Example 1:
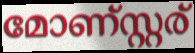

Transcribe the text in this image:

മോണ്സ്റ്റര്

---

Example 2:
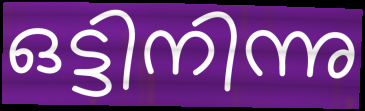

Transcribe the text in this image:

ഒട്ടിനിന്നു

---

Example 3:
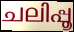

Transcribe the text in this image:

ചലിപ്പൂ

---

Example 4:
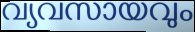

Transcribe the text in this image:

വ്യവസായവും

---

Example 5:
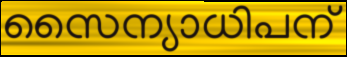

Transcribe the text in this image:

സൈന്യാധിപന്